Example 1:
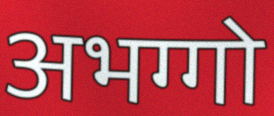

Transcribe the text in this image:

अभग्गो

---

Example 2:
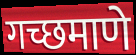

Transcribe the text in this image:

गच्छमाणे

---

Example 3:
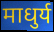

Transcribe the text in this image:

माधुर्य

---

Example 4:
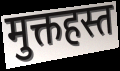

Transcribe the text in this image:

मुक्तहस्त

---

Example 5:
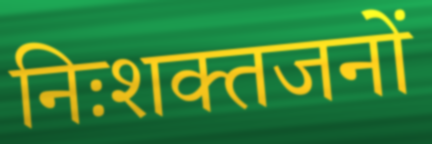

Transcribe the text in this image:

निःशक्तजनों